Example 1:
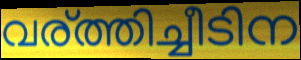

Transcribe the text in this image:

വര്ത്തിച്ചീടിന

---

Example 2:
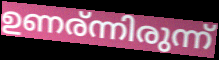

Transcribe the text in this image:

ഉണര്ന്നിരുന്ന്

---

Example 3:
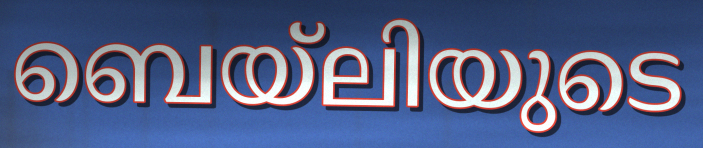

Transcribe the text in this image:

ബെയ്ലിയുടെ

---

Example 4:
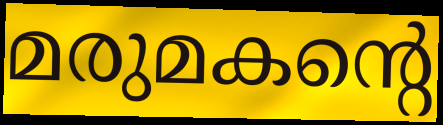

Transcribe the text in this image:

മരുമകന്റെ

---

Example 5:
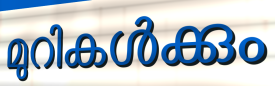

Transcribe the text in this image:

മുറികൾക്കും